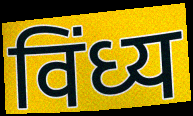
विंध्य